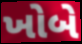
ખોબે